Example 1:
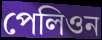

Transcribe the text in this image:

পেলিওন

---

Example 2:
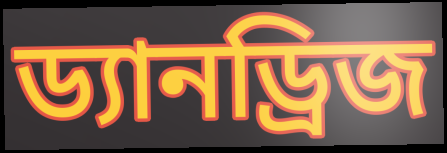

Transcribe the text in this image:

ড্যানড্রিজ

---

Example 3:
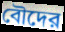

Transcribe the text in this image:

বৌদের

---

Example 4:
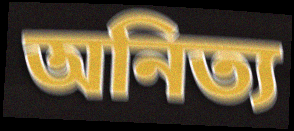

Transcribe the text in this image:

অনিত্য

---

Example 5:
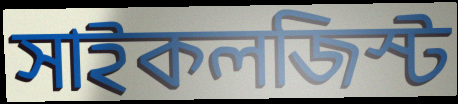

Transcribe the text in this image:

সাইকলজিস্ট